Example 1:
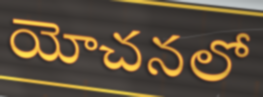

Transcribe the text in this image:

యోచనలో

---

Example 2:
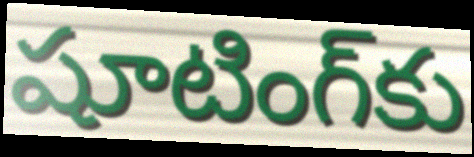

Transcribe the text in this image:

షూటింగ్‌కు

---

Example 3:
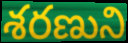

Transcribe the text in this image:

శరణుని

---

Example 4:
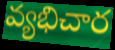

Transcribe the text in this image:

వ్యభిచార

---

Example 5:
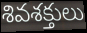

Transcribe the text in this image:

శివశక్తులు